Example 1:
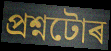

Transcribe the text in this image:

প্ৰশ্নটোৰ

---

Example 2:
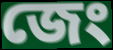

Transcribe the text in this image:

জেং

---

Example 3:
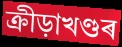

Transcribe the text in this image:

ক্ৰীড়াখণ্ডৰ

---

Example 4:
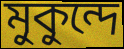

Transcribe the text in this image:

মুকুন্দে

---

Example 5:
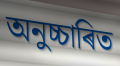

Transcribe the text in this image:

অনুচ্চাৰিত